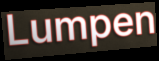
Lumpen